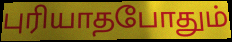
புரியாதபோதும்